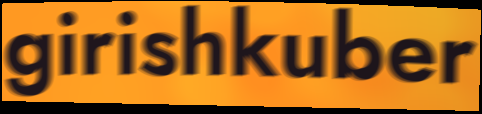
girishkuber